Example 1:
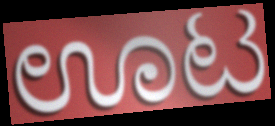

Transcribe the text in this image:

ಊಟ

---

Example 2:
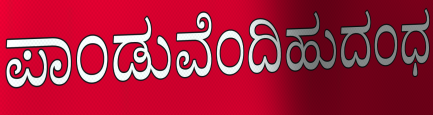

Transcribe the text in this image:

ಪಾಂಡುವೆಂದಿಹುದಂಧ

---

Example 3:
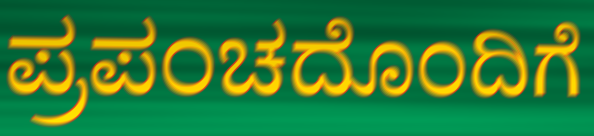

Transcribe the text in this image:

ಪ್ರಪಂಚದೊಂದಿಗೆ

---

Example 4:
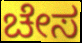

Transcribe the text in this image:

ಚೇಸ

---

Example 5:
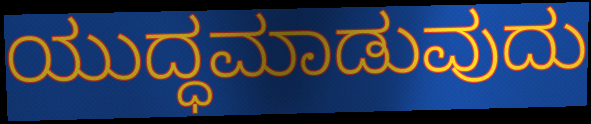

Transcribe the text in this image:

ಯುದ್ಧಮಾಡುವುದು